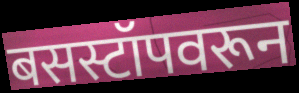
बसस्टॉपवरून